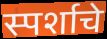
स्पर्शाचे